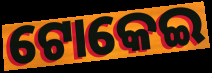
ଟୋକେଇ